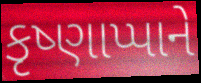
કૃષ્ણાપ્પાને